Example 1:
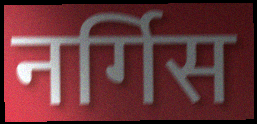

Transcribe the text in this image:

नर्गिस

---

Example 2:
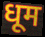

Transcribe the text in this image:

धूम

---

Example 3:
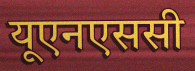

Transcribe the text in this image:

यूएनएससी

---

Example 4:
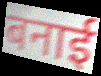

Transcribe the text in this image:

बनाई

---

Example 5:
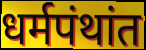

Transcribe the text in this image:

धर्मपंथांत